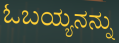
ಓಬಯ್ಯನನ್ನು